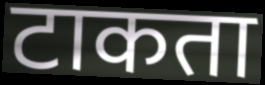
टाकता